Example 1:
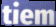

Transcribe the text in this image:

tiem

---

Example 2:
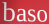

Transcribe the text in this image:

baso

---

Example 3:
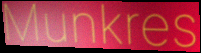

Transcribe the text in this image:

Munkres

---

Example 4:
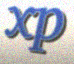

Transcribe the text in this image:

xp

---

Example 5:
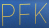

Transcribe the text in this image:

PFK